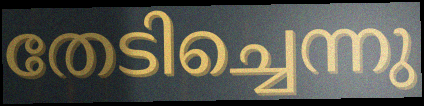
തേടിച്ചെന്നു